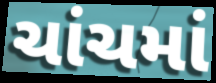
ચાંચમાં